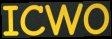
ICWO